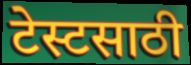
टेस्टसाठी